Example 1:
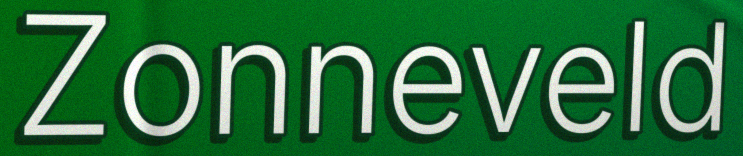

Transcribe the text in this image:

Zonneveld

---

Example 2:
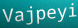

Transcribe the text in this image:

Vajpeyi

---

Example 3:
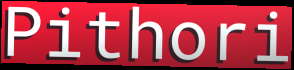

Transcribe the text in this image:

Pithori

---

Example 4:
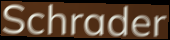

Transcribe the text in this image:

Schrader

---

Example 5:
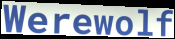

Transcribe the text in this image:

Werewolf